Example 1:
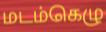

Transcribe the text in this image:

மடம்கெழு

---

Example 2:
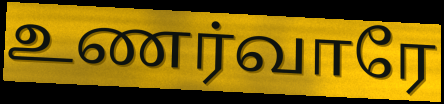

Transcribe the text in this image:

உணர்வாரே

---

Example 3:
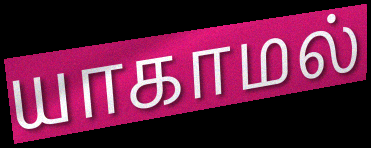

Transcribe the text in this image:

யாகாமல்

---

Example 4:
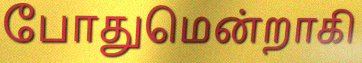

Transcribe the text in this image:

போதுமென்றாகி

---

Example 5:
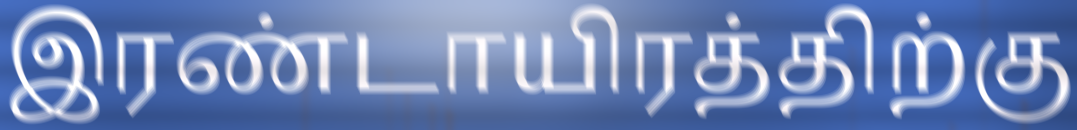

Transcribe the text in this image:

இரண்டாயிரத்திற்கு